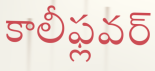
కాలీఫ్లవర్